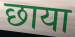
छाया